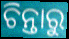
ଚିନ୍ତାରୁ